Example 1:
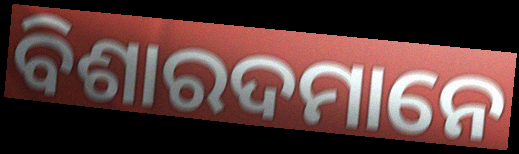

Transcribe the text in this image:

ବିଶାରଦମାନେ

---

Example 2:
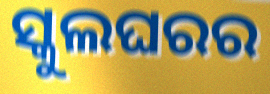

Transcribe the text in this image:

ସ୍କୁଲଘରର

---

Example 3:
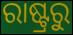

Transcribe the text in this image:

ରାଷ୍ଟ୍ରରୁ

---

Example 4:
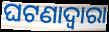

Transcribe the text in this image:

ଘଟଣାଦ୍ୱାରା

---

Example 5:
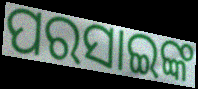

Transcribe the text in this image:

ପରସାଇଙ୍କ